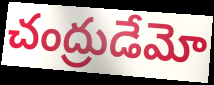
చంద్రుడేమో